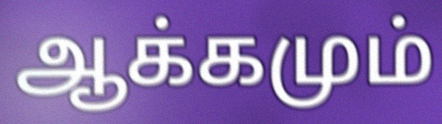
ஆக்கமும்